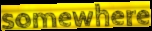
somewhere